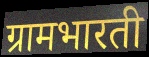
ग्रामभारती